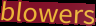
blowers